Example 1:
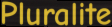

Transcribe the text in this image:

Pluralite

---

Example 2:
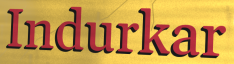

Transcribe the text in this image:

Indurkar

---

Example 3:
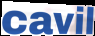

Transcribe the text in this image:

cavil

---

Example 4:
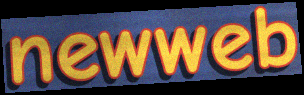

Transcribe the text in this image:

newweb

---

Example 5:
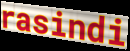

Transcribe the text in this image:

rasindi